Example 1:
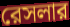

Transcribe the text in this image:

রেসলার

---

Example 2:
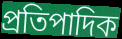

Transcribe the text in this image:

প্রতিপাদিক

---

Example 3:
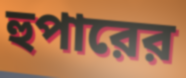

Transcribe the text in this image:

হুপারের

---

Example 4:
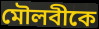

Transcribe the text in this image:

মৌলবীকে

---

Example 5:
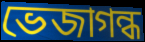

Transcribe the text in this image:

ভেজাগন্ধ